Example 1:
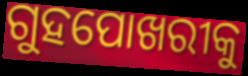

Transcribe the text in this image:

ଗୁହପୋଖରୀକୁ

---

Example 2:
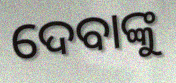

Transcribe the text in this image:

ଦେବାଙ୍କୁ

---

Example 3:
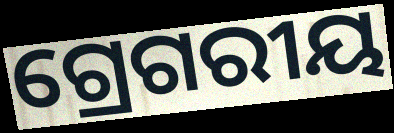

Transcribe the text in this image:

ଗ୍ରେଗରୀୟ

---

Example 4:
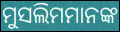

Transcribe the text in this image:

ମୁସଲିମମାନଙ୍କ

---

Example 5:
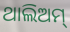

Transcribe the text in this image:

ଥାଲିଅମ୍